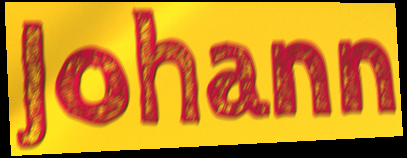
Johann